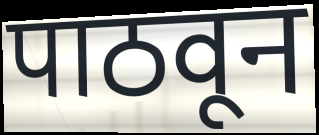
पाठवून